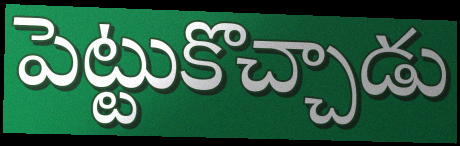
పెట్టుకొచ్చాడు